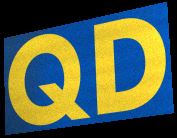
QD